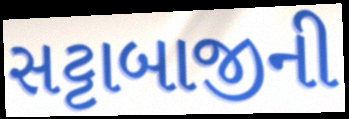
સટ્ટાબાજીની